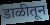
डाळीतून